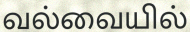
வல்வையில்